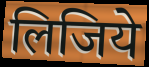
लिजिये